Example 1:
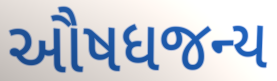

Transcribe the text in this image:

ઔષધજન્ય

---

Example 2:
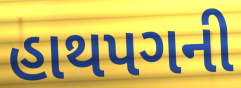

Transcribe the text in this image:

હાથપગની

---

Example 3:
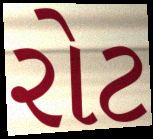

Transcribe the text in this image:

રોટ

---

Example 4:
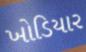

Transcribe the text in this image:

ખોડિયાર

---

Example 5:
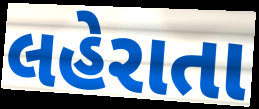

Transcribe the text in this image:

લહેરાતા